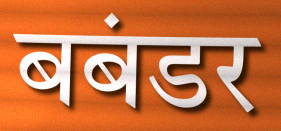
बबंडर